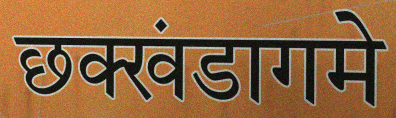
छक्खंडागमे